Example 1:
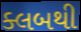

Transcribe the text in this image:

ક્લબથી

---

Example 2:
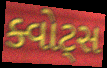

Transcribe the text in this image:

ક્વોટ્સ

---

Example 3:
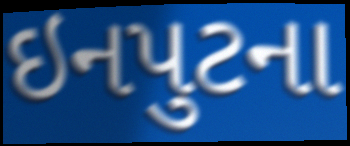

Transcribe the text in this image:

ઇનપુટના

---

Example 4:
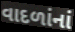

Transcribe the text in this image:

વાદળાંનાં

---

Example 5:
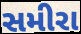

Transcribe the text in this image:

સમીરા